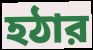
হঠার